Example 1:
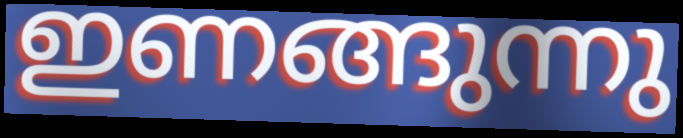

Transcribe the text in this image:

ഇണങ്ങുന്നു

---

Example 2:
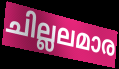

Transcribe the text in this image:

ചില്ലലമാര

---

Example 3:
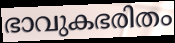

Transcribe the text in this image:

ഭാവുകഭരിതം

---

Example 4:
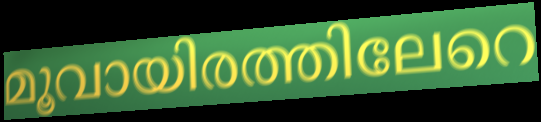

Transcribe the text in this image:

മൂവായിരത്തിലേറെ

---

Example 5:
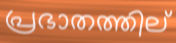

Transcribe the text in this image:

പ്രഭാതത്തില്